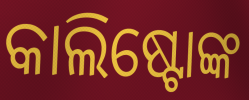
କାଲିଷ୍ଟୋଙ୍କ